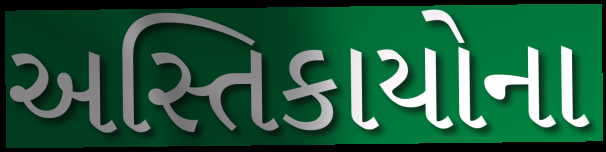
અસ્તિકાયોના